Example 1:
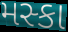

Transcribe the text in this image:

મસ્કા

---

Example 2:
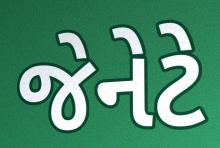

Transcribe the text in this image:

જેનેટે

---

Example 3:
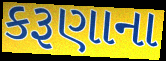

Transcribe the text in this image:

કરૂણાના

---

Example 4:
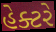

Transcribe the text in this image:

હેક્ટરે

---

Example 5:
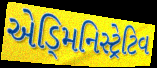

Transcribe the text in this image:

એડ્મિનિસ્ટ્રેટિવ